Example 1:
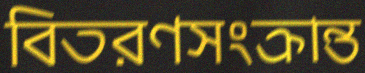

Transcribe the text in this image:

বিতরণসংক্রান্ত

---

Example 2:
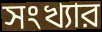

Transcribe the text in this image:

সংখ্যার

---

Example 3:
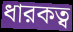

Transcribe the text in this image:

ধারকত্ব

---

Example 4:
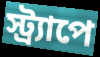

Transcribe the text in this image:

স্ট্র্যাপে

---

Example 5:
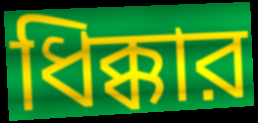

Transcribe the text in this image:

ধিক্কার